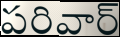
పరివార్